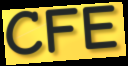
CFE